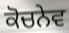
ਕੋਚਨੇਵ